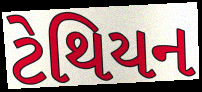
ટેથિયન